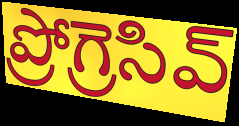
ప్రోగ్రెసివ్